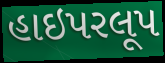
હાઇપરલૂપ